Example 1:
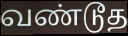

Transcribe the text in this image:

வண்டூத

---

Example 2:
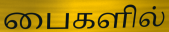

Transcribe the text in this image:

பைகளில்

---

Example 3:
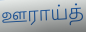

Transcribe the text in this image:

ஊராய்த்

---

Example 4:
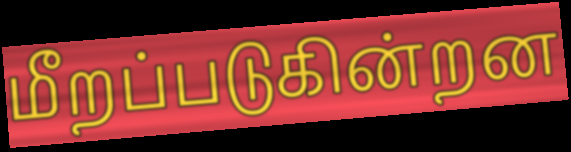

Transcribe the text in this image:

மீறப்படுகின்றன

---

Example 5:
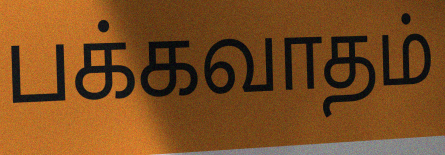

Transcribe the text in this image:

பக்கவாதம்